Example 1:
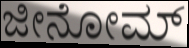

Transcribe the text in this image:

ಜೀನೋಮ್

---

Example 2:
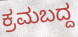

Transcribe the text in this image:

ಕ್ರಮಬದ್ದ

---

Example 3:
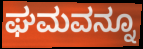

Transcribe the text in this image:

ಘಮವನ್ನೂ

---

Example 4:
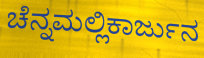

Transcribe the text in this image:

ಚೆನ್ನಮಲ್ಲಿಕಾರ್ಜುನ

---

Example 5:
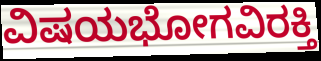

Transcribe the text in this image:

ವಿಷಯಭೋಗವಿರಕ್ತಿ